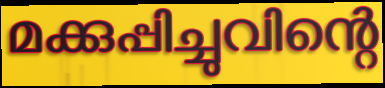
മക്കുപ്പിച്ചുവിന്റെ